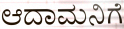
ಆದಾಮನಿಗೆ